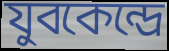
যুবকেন্দ্রে